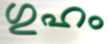
ഗുഹം